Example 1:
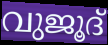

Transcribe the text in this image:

വുജൂദ്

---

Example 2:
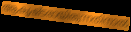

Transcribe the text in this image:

ആകൃഷ്ടരായിരുന്നതിനാൽ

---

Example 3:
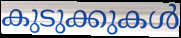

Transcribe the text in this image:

കുടുക്കുകൾ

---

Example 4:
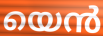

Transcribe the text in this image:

യെൻ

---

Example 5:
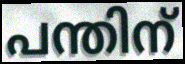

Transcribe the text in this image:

പന്തിന്